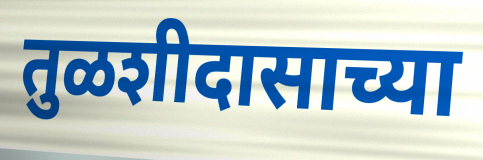
तुळशीदासाच्या